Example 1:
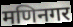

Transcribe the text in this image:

मणिनगर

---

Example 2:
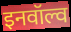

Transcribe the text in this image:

इनवॉल्व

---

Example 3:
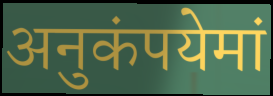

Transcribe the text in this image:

अनुकंपयेमां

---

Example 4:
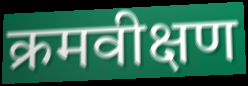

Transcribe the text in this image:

क्रमवीक्षण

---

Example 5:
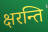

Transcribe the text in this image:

क्षरन्ति